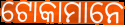
ଟୋକାମାନେ